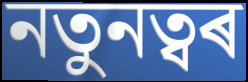
নতুনত্বৰ